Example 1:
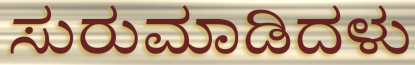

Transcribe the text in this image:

ಸುರುಮಾಡಿದಳು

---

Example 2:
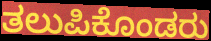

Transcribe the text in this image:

ತಲುಪಿಕೊಂಡರು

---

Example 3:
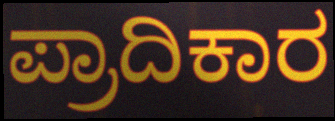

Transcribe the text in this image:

ಪ್ರಾದಿಕಾರ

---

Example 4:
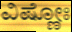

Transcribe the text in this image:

ವಿಷ್ಣೋಃ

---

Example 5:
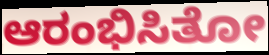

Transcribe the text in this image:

ಆರಂಭಿಸಿತೋ